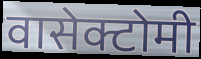
वासेक्टोमी